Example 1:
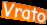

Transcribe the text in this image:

Vrato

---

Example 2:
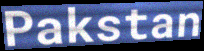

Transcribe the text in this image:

Pakstan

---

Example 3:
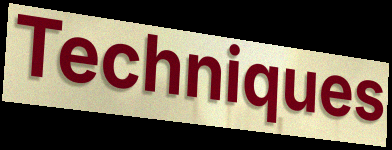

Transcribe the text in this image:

Techniques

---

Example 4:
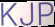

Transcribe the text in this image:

KJP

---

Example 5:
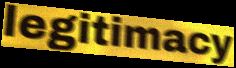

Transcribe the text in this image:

legitimacy